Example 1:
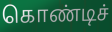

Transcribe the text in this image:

கொண்டிச்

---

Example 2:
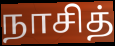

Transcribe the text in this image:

நாசித்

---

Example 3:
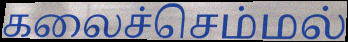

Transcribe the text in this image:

கலைச்செம்மல்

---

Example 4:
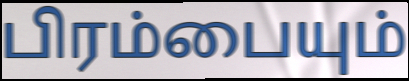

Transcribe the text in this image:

பிரம்பையும்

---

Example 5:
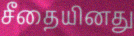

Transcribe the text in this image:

சீதையினது